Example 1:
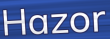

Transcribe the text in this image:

Hazor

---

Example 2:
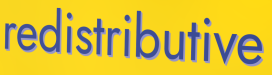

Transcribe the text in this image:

redistributive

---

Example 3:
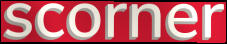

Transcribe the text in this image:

scorner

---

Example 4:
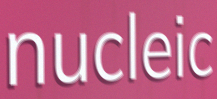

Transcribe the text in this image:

nucleic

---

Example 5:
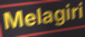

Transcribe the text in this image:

Melagiri